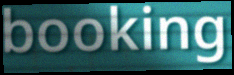
booking